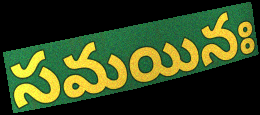
సమయినః